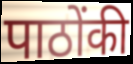
पाठोंकी